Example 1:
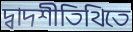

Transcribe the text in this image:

দ্বাদশীতিথিতে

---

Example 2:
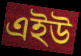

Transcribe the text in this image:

এইউ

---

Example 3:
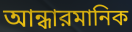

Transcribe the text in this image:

আন্ধারমানিক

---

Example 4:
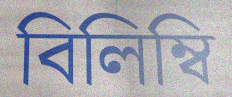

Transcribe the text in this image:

বিলিম্বি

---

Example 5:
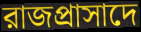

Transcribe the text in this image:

রাজপ্রাসাদে